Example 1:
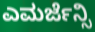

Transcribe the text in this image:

ಎಮರ್ಜೆನ್ಸಿ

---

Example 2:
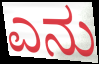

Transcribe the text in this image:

ಎನು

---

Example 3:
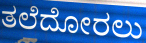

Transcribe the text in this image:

ತಲೆದೋರಲು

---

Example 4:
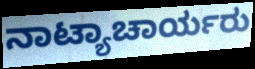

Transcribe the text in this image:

ನಾಟ್ಯಾಚಾರ್ಯರು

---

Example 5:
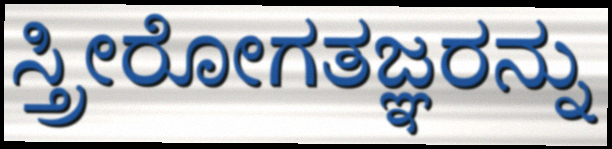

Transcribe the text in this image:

ಸ್ತ್ರೀರೋಗತಜ್ಞರನ್ನು